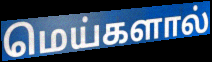
மெய்களால்